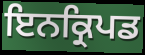
ਇਨਕ੍ਰਿਪਡ